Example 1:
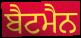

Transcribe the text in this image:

ਬੈਟਮੈਨ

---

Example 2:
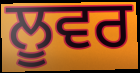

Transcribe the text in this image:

ਲੂਵਰ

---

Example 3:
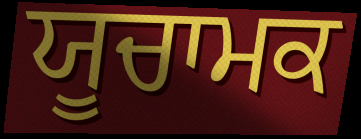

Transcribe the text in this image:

ਯੂਚਾਮਕ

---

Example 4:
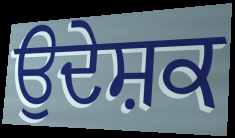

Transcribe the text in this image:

ਉਦੇਸ਼ਕ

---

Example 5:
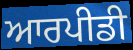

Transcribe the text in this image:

ਆਰਪੀਡੀ